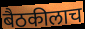
बैठकीलाच